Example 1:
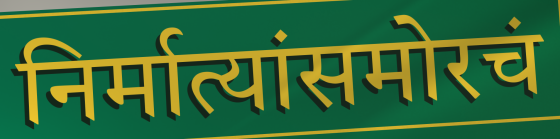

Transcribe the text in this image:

निर्मात्यांसमोरचं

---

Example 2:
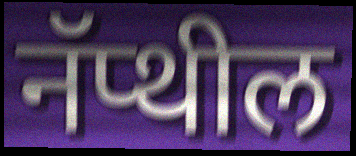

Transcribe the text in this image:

नॅप्थील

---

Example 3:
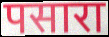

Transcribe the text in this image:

पसारा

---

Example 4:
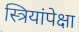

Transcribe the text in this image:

स्त्रियांपेक्षा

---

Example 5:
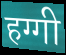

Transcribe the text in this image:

हग्गी